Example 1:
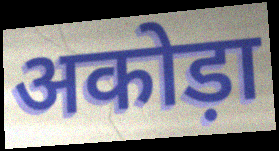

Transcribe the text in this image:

अकोड़ा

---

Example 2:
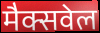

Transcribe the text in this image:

मैक्सवेल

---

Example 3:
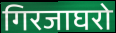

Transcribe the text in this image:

गिरजाघरो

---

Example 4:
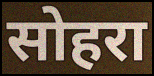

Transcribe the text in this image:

सोहरा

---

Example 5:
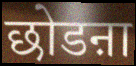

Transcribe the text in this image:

छोडऩा